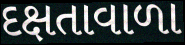
દક્ષતાવાળા